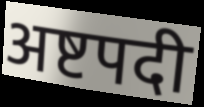
अष्टपदी